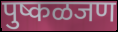
पुष्कळजण